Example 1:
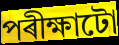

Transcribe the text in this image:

পৰীক্ষাটো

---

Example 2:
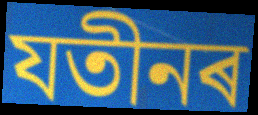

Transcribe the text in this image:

যতীনৰ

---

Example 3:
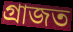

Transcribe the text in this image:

গ্ৰাজত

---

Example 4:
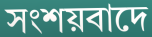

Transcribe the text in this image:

সংশয়বাদে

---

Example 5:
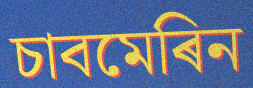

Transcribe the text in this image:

চাবমেৰিন